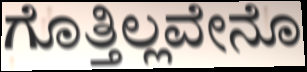
ಗೊತ್ತಿಲ್ಲವೇನೊ